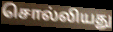
சொல்லியது